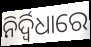
ନିର୍ଦ୍ୱିଧାରେ